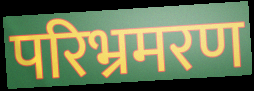
परिभ्रमरण